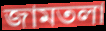
জামতলা